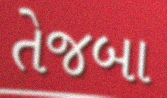
તેજબા